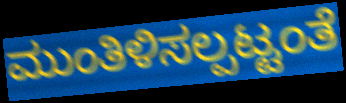
ಮುಂತಿಳಿಸಲ್ಪಟ್ಟಂತೆ